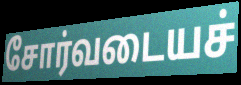
சோர்வடையச்